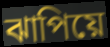
ঝাপিয়ে